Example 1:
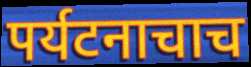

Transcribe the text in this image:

पर्यटनाचाच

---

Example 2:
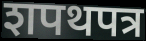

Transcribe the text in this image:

शपथपत्र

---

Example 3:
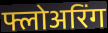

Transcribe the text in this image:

फ्लोअरिंग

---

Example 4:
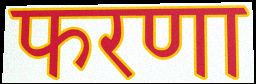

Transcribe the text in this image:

फरणा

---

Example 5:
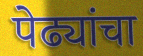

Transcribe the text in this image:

पेढ्यांचा